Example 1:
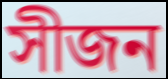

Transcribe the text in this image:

সীজন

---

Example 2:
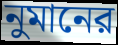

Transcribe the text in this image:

নুমানের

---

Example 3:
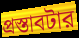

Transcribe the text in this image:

প্রস্তাবটার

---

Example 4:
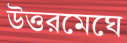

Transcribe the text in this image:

উত্তরমেঘে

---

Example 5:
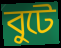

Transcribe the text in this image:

বুটে